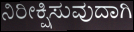
ನಿರೀಕ್ಷಿಸುವುದಾಗಿ